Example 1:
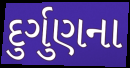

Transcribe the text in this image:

દુર્ગુણના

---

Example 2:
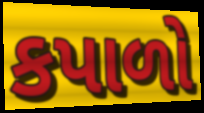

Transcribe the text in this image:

કપાળો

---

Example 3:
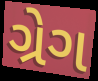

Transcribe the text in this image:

ગ્રેગ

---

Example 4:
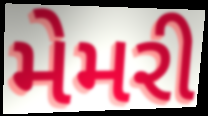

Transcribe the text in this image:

મેમરી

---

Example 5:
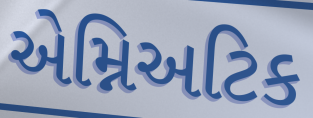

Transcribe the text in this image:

એમ્નિઅટિક